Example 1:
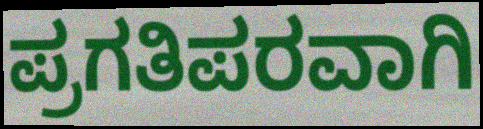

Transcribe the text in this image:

ಪ್ರಗತಿಪರವಾಗಿ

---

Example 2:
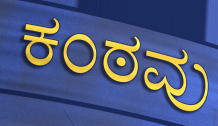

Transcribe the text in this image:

ಕಂಠವು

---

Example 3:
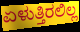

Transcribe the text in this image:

ಏಳುತ್ತಿರಲಿಲ್ಲ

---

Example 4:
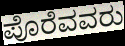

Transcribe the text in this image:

ಪೊರೆವವರು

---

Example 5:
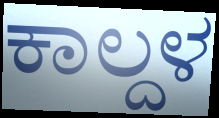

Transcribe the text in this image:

ಕಾಲ್ದಳ